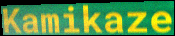
Kamikaze